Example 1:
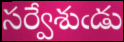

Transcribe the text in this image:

సర్వేశుఁడు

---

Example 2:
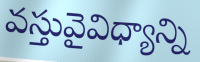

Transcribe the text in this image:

వస్తువైవిధ్యాన్ని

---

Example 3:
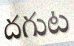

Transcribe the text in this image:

దగుట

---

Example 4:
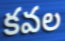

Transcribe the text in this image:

కవల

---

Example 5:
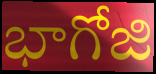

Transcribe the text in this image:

భాగోజి